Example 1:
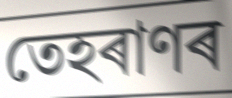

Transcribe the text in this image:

তেহৰাণৰ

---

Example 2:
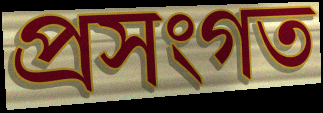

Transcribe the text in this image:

প্ৰসংগত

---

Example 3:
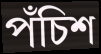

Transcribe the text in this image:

পঁচিশ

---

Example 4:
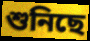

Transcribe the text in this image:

শুনিছে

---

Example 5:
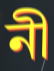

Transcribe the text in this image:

নী